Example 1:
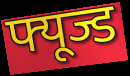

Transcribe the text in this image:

फ्यूज्ड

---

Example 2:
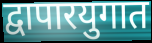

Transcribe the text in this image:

द्वापारयुगात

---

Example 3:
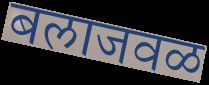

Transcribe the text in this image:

बलाजवळ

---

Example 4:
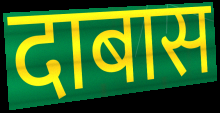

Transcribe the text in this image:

दाबास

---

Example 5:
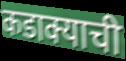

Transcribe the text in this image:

कडाक्याची